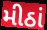
મીઠાં